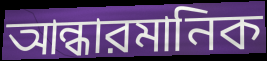
আন্ধারমানিক